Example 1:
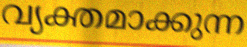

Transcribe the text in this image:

വ്യക്തമാക്കുന്ന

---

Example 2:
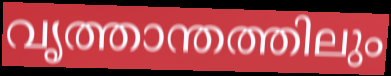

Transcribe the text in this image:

വൃത്താന്തത്തിലും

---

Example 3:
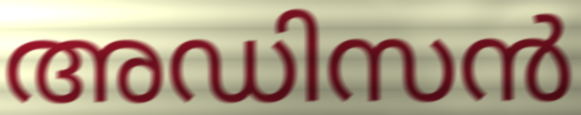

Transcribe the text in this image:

അഡിസൻ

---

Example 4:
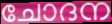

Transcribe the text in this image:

ചോദന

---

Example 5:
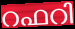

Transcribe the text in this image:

റഫറി